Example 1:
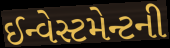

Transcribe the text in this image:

ઈન્વેસ્ટમેન્ટની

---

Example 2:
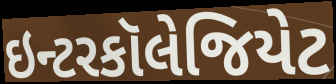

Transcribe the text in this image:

ઇન્ટરકૉલેજિયેટ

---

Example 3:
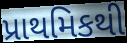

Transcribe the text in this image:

પ્રાથમિકથી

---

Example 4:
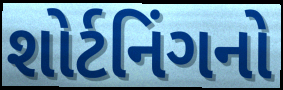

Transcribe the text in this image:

શોર્ટનિંગનો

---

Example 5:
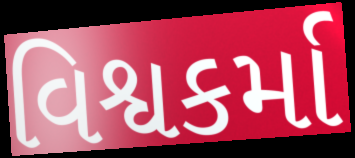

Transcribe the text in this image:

વિશ્વકર્મા